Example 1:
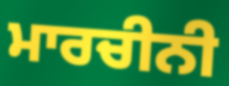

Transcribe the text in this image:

ਮਾਰਚੀਨੀ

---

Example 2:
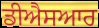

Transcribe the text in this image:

ਡੀਐਸਆਰ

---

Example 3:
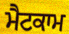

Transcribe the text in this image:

ਮੈਟਕਾਮ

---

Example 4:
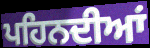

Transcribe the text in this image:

ਪਹਿਨਦੀਆਂ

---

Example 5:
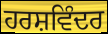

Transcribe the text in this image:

ਹਰਸ਼ਵਿੰਦਰ